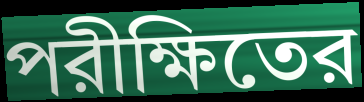
পরীক্ষিতের